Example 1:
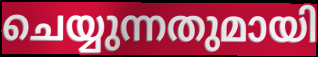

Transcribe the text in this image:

ചെയ്യുന്നതുമായി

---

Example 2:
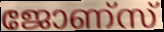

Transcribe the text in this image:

ജോണ്സ്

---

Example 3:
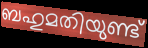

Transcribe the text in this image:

ബഹുമതിയുണ്ട്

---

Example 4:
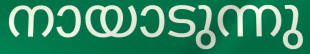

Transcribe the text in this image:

നായാടുന്നു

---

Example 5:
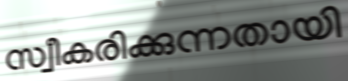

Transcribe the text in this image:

സ്വീകരിക്കുന്നതായി